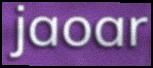
jaoar